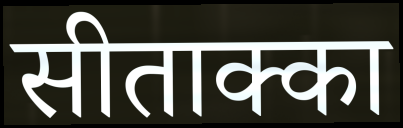
सीताक्का